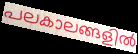
പലകാലങ്ങളിൽ